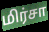
மிர்சா